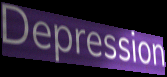
Depression